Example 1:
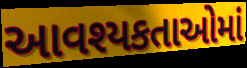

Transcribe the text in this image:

આવશ્યકતાઓમાં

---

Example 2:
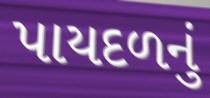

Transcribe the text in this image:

પાયદળનું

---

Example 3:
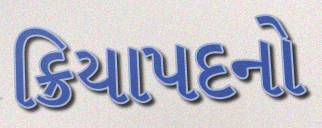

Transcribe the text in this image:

ક્રિયાપદનો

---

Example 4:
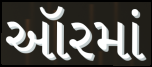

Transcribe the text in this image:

ઑરમાં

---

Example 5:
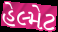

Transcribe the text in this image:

હેલ્મેટ